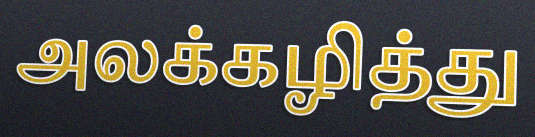
அலக்கழித்து